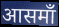
आसमाँ